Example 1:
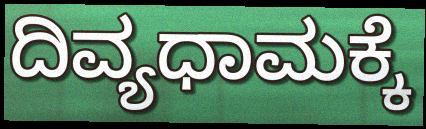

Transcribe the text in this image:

ದಿವ್ಯಧಾಮಕ್ಕೆ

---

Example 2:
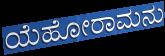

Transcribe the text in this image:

ಯೆಹೋರಾಮನು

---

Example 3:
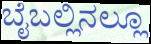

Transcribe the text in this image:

ಬೈಬಲ್ಲಿನಲ್ಲೂ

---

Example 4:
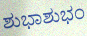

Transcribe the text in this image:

ಶುಭಾಶುಭಂ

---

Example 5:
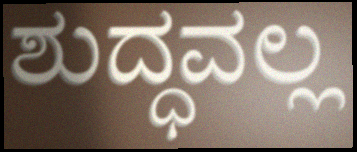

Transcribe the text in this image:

ಶುದ್ಧವಲ್ಲ